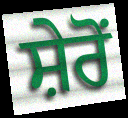
ਸ਼ੇਰੋਂ